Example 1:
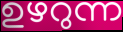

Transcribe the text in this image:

ഉഴറുന്ന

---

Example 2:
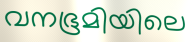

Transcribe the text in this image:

വനഭൂമിയിലെ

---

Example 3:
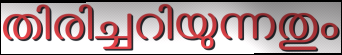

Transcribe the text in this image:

തിരിച്ചറിയുന്നതും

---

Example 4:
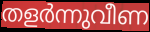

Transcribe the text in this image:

തളർന്നുവീണ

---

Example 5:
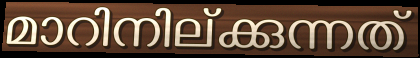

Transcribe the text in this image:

മാറിനില്ക്കുന്നത്